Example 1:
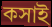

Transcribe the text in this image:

কসাই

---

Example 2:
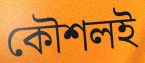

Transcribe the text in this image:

কৌশলই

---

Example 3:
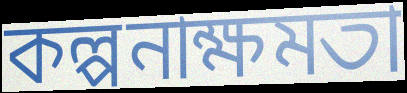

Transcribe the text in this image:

কল্পনাক্ষমতা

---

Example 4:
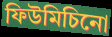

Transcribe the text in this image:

ফিউমিচিনো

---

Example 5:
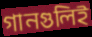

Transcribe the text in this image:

গানগুলিই